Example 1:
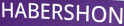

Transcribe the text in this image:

HABERSHON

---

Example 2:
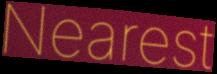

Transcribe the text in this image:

Nearest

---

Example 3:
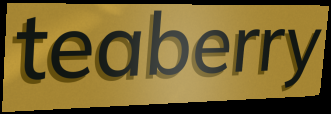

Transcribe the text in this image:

teaberry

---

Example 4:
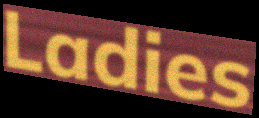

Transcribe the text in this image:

Ladies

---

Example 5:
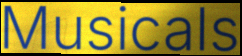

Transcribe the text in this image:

Musicals